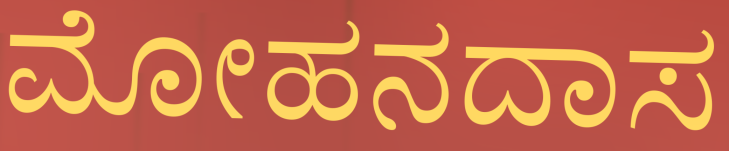
ಮೋಹನದಾಸ